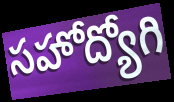
సహోద్యోగి